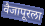
वैजापूरला